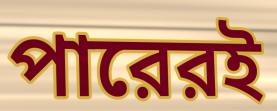
পারেরই